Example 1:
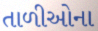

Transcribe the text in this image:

તાળીઓના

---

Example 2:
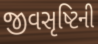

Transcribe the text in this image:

જીવસૃષ્ટિની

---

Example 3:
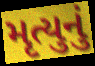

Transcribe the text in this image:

મૃત્યુનું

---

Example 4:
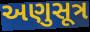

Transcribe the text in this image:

અણુસૂત્ર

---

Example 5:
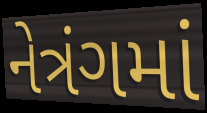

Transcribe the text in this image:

નેત્રંગમાં